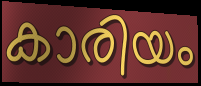
കാരിയം